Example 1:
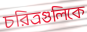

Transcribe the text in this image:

চরিত্রগুলিকে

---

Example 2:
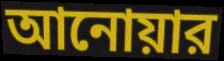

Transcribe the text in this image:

আনোয়ার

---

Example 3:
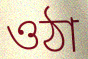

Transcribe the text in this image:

ওঠা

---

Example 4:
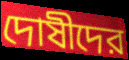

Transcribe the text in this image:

দোষীদের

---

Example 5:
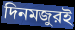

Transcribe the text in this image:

দিনমজুরই